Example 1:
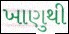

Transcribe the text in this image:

ખાણુથી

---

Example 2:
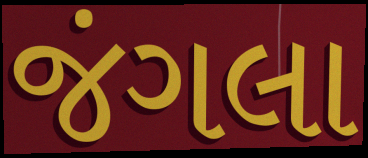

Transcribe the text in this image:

જંગલા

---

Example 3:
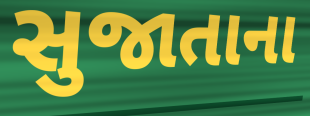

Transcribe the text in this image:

સુજાતાના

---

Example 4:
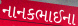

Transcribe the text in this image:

નાનકભાઈના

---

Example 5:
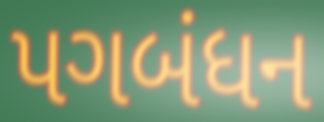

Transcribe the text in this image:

પગબંધન